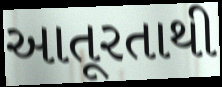
આતૂરતાથી